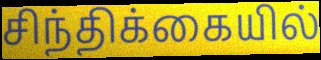
சிந்திக்கையில்